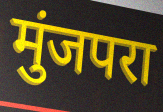
मुंजपरा